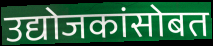
उद्योजकांसोबत